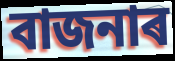
বাজনাৰ